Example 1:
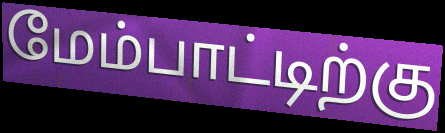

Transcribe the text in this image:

மேம்பாட்டிற்கு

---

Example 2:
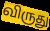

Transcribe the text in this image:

விருது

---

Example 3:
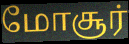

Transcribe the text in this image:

மோசூர்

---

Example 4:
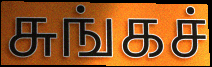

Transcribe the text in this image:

சுங்கச்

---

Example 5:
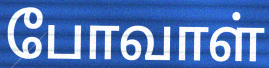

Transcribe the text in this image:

போவாள்